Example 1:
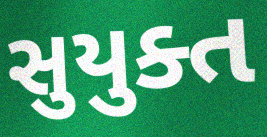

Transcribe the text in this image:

સુયુક્ત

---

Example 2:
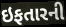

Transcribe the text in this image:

ઇફતારની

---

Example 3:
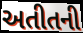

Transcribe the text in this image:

અતીતની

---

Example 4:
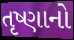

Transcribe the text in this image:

તૃષ્ણાનો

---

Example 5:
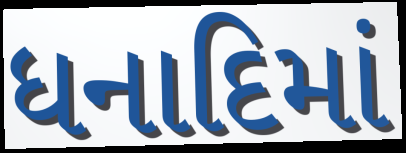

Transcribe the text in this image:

ધનાદિમાં